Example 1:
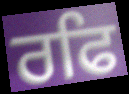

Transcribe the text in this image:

ਰਫਿ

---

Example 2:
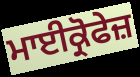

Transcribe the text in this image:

ਮਾਈਕ੍ਰੋਫੇਜ਼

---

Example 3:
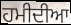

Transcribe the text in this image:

ਹਮੀਦੀਆ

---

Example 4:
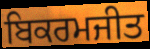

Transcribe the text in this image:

ਬਿਕਰਮਜੀਤ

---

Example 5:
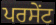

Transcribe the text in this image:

ਪਰਸੇੰਟ